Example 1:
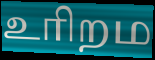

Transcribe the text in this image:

உரிறம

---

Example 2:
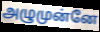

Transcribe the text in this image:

அழுமுன்னே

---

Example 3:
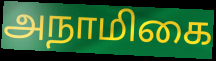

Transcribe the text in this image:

அநாமிகை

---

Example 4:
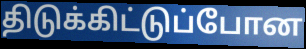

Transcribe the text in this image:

திடுக்கிட்டுப்போன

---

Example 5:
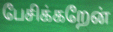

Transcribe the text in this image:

பேசிக்கறேன்